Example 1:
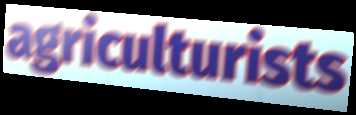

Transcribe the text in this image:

agriculturists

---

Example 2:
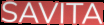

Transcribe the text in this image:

SAVITA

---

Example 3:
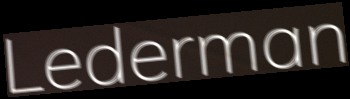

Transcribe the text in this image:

Lederman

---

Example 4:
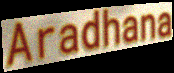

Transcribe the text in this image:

Aradhana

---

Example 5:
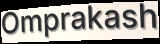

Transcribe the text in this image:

Omprakash